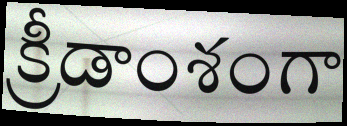
క్రీడాంశంగా